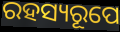
ରହସ୍ୟରୂପେ